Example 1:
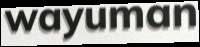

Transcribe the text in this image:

wayuman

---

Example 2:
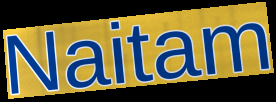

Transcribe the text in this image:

Naitam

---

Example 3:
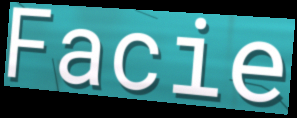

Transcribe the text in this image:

Facie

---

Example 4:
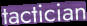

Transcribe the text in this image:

tactician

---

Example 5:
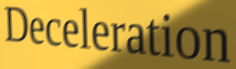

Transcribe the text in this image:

Deceleration